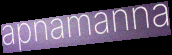
apnamanna